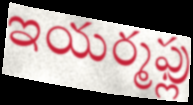
ఇయర్మఫ్లు